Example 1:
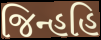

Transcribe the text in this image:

જિન્હહિ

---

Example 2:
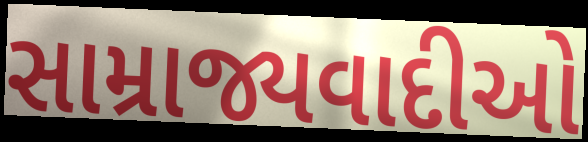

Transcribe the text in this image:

સામ્રાજ્યવાદીઓ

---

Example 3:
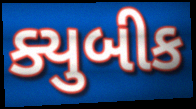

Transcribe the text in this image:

ક્યુબીક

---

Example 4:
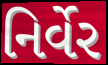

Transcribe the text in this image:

નિર્વેર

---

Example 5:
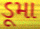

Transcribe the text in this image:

ડૂમા